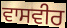
ਵਾਸਵੀਰ